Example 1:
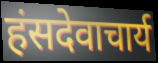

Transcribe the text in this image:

हंसदेवाचार्य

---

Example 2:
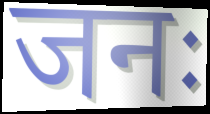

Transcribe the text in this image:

जनः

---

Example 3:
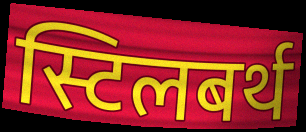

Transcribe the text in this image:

स्टिलबर्थ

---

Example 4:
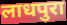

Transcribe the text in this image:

लाधपुरा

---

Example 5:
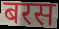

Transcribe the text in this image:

बरस